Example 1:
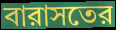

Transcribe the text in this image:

বারাসতের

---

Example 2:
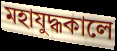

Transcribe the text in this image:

মহাযুদ্ধকালে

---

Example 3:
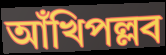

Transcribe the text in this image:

আঁখিপল্লব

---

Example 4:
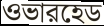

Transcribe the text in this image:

ওভারহেড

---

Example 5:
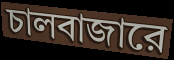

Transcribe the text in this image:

চালবাজারে